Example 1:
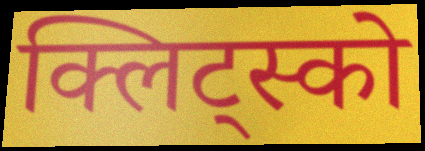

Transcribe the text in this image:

क्लिट्स्को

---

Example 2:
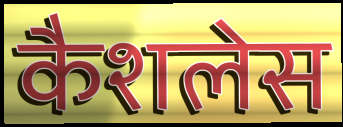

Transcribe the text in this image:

कैशलेस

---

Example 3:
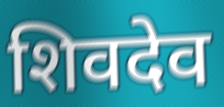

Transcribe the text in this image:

शिवदेव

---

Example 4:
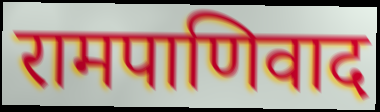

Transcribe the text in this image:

रामपाणिवाद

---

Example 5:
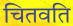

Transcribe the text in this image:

चितवति